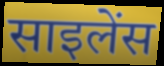
साइलेंस